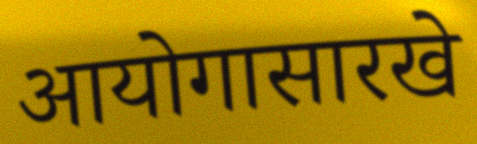
आयोगासारखे